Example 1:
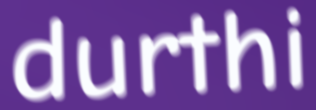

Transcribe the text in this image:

durthi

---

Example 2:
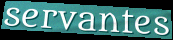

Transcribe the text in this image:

servantes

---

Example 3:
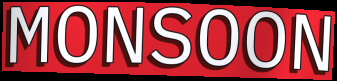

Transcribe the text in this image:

MONSOON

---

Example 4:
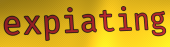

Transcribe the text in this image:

expiating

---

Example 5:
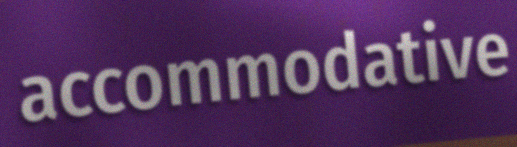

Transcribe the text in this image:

accommodative